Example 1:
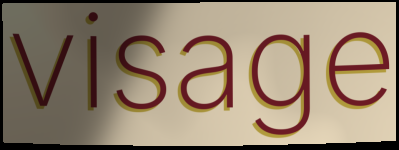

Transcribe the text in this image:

visage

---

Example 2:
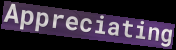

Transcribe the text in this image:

Appreciating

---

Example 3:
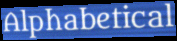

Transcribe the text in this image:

Alphabetical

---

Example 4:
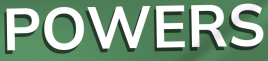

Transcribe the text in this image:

POWERS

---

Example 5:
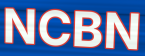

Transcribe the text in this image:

NCBN